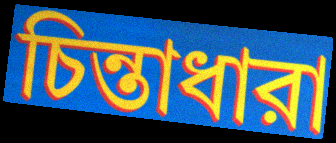
চিন্তাধারা